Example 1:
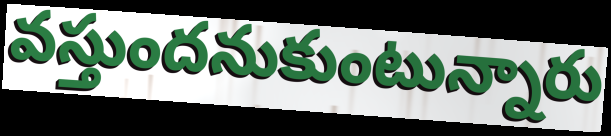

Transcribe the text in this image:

వస్తుందనుకుంటున్నారు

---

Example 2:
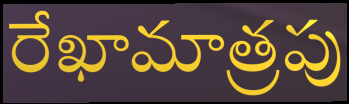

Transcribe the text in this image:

రేఖామాత్రపు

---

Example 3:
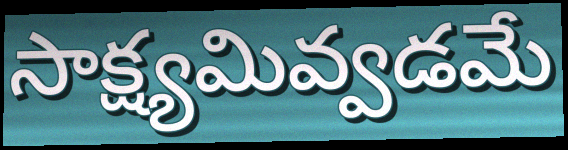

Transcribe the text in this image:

సాక్ష్యమివ్వడమే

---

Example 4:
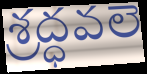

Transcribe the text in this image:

శ్రద్ధవలె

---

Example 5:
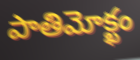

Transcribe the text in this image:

పాతిమోక్ఖం